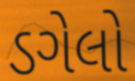
ડગેલો